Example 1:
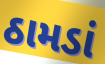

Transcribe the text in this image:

ઠામડાં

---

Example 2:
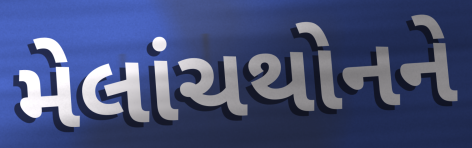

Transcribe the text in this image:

મેલાંચથોનને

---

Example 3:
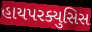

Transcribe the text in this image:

હાયપરક્યુસિસ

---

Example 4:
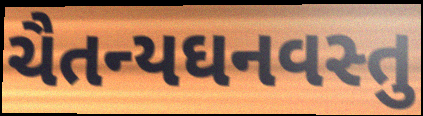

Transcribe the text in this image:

ચૈતન્યઘનવસ્તુ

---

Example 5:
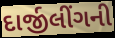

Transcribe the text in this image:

દાર્જીલીંગની